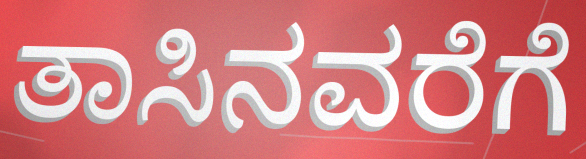
ತಾಸಿನವರೆಗೆ